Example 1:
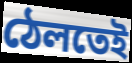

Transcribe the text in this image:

ঠেলতেই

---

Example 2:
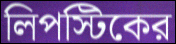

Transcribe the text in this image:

লিপস্টিকের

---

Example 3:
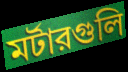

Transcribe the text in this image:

মর্টারগুলি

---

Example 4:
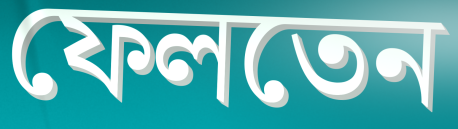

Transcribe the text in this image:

ফেলতেন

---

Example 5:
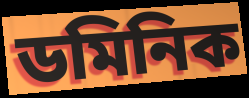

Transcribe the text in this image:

ডমিনিক